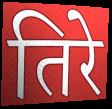
तिरे